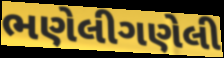
ભણેલીગણેલી